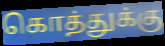
கொத்துக்கு